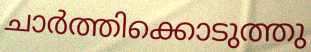
ചാർത്തിക്കൊടുത്തു